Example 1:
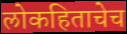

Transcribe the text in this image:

लोकहिताचेच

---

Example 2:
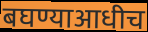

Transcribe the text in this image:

बघण्याआधीच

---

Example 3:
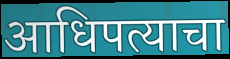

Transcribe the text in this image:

आधिपत्याचा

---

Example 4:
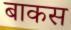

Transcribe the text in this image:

बाकस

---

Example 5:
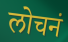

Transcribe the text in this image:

लोचनं